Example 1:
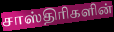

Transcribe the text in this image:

சாஸ்திரிகளின்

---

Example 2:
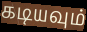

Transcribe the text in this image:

கடியவும்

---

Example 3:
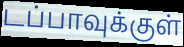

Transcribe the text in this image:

டப்பாவுக்குள்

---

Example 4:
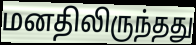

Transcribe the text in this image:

மனதிலிருந்தது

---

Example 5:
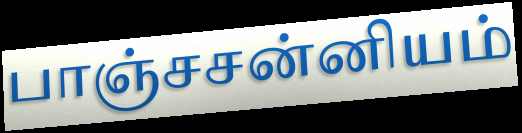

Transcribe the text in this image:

பாஞ்சசன்னியம்